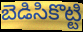
బెడిసికొట్టి